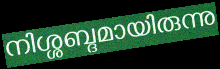
നിശ്ശബ്ദമായിരുന്നു